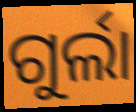
ଗୁର୍ଲା